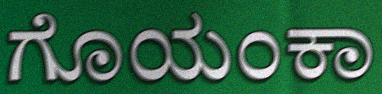
ಗೊಯಂಕಾ